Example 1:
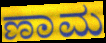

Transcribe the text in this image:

ಣಾಮ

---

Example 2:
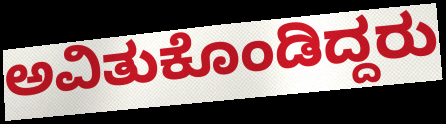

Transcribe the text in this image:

ಅವಿತುಕೊಂಡಿದ್ದರು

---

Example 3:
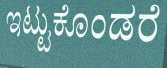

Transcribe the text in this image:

ಇಟ್ಟುಕೊಂಡರೆ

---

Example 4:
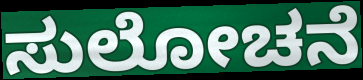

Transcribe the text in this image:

ಸುಲೋಚನೆ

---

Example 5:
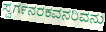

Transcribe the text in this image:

ಸ್ವರ್ಗನರಕವನರಿವನು